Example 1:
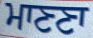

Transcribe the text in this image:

ਮਾਣਣਾ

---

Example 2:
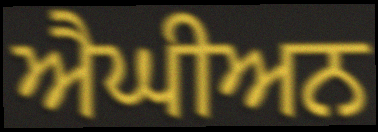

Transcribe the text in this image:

ਐਘੀਅਨ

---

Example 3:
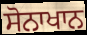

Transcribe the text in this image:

ਸੋਨਾਖਾਨ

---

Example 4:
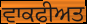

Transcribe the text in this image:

ਵਾਕਫੀਅਤ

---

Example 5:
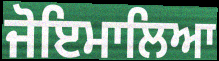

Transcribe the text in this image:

ਜੋਇਮਾਲਿਆ